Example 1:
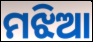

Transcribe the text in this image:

ମଝିଆ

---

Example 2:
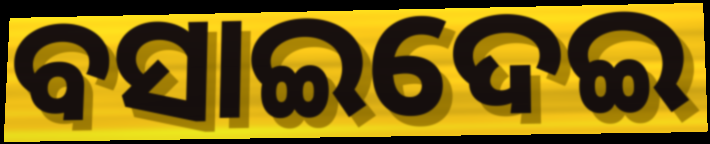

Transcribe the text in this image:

ବସାଇଦେଇ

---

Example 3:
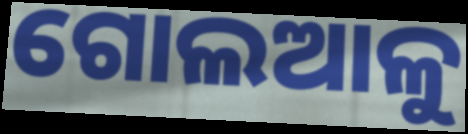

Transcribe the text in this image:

ଗୋଲଆଳୁ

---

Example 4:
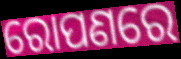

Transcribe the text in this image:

ରୋପଣରେ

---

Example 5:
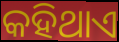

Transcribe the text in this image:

କହିଥାଏ